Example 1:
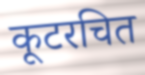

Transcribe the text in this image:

कूटरचित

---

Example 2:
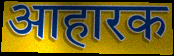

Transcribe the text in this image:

आहारक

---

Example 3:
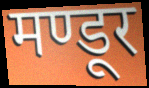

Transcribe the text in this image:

मण्डूर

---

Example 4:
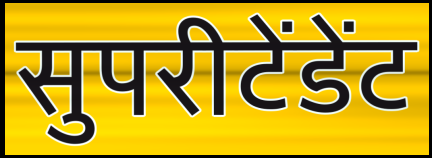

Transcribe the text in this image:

सुपरीटेंडेंट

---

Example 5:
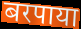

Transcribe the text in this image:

बरपाया